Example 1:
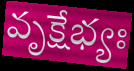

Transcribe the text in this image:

వృక్షేభ్యః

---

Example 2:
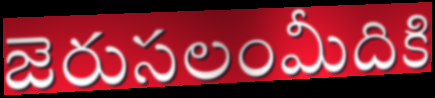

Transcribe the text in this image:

జెరుసలంమీదికి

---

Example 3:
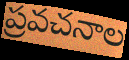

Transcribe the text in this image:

ప్రవచనాల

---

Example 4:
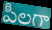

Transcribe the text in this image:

పీలగా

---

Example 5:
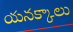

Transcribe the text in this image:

యనక్కాలు